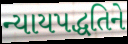
ન્યાયપદ્ધતિને